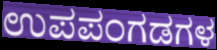
ಉಪಪಂಗಡಗಳ